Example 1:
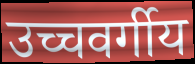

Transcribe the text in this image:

उच्चवर्गीय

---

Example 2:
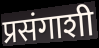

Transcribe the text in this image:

प्रसंगाशी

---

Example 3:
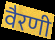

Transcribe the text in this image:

वैरणी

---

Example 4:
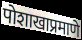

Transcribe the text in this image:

पोशाखाप्रमाणे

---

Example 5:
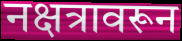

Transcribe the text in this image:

नक्षत्रावरून